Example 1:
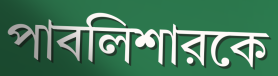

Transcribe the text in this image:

পাবলিশারকে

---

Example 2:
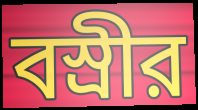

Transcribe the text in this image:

বস্রীর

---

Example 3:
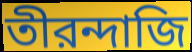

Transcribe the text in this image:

তীরন্দাজি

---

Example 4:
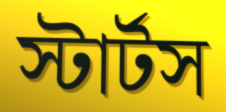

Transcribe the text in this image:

স্টার্টস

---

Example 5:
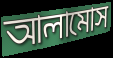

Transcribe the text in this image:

আলামোস